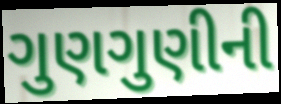
ગુણગુણીની